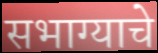
सभाग्याचे